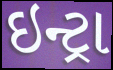
ઇન્ટ્રા